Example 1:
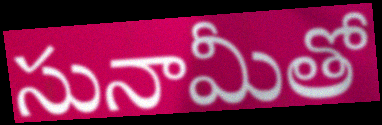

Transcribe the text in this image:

సునామీతో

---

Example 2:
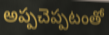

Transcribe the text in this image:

అప్పచెప్పటంతో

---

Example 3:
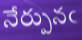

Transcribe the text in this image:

నేర్పునఁ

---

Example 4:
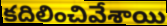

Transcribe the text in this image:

కదిలించివేశాయి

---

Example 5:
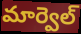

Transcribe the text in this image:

మార్వెల్